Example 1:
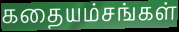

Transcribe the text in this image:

கதையம்சங்கள்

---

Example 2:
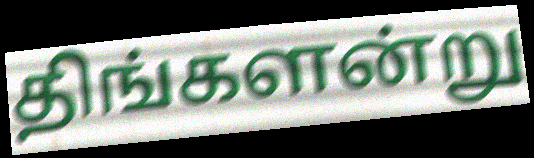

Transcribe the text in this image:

திங்களன்று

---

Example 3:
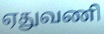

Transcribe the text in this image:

ஏதுவணி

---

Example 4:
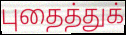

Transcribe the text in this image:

புதைத்துக்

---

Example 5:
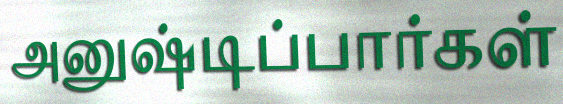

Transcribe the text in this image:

அனுஷ்டிப்பார்கள்